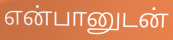
என்பானுடன்